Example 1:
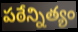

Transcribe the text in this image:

పఠేన్నిత్యం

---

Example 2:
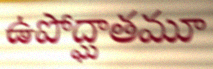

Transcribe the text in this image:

ఉపోద్ఘాతమూ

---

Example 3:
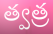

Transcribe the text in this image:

త్వత్ర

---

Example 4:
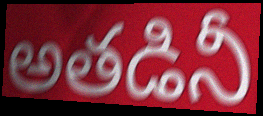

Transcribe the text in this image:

అతడినీ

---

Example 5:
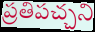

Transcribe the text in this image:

ప్రతిపచ్చని